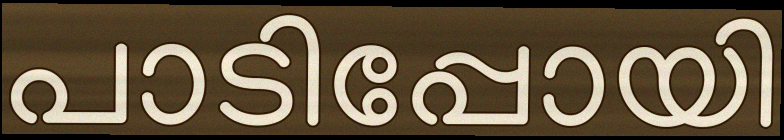
പാടിപ്പോയി